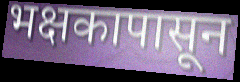
भक्षकापासून